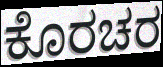
ಕೊರಚರ